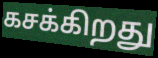
கசக்கிறது